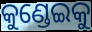
କୁଣ୍ଡେଇକୁ